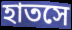
হাতসে